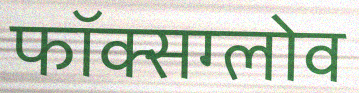
फॉक्सग्लोव